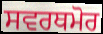
ਸਵਰਥਮੋਰ